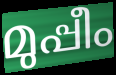
മുപ്പീം